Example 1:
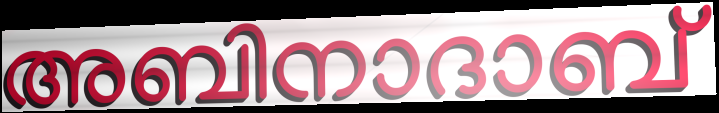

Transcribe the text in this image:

അബിനാദാബ്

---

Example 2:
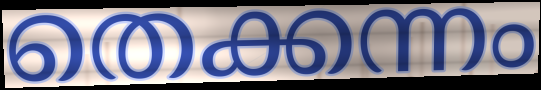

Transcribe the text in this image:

തെക്കന്നം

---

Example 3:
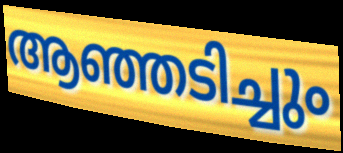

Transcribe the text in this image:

ആഞ്ഞടിച്ചും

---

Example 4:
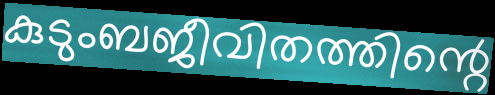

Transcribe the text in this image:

കുടുംബജീവിതത്തിന്റെ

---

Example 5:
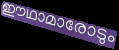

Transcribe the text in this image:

ഈഥാമാരോടും